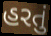
હરતું